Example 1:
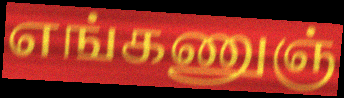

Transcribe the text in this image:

எங்கணுஞ்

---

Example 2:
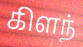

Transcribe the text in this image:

கிளந்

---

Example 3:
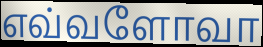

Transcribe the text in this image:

எவ்வளோவா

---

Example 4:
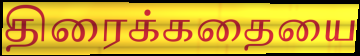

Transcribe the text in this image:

திரைக்கதையை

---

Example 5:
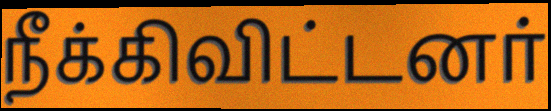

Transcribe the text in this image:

நீக்கிவிட்டனர்